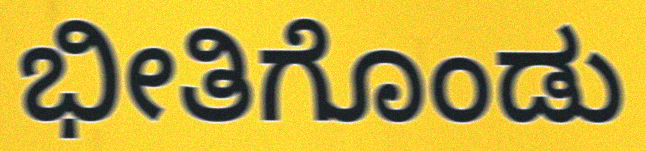
ಭೀತಿಗೊಂಡು